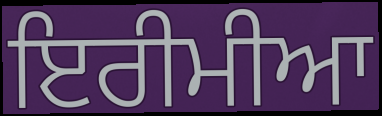
ਇਰੀਮੀਆ